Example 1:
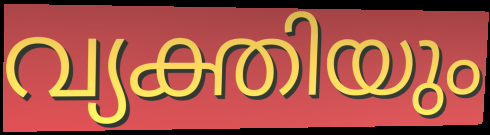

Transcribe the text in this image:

വ്യക്തിയും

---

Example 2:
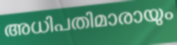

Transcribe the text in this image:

അധിപതിമാരായും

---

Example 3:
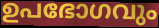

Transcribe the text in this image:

ഉപഭോഗവും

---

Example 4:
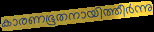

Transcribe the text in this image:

കാരണഭൂതനായിത്തീർന്നു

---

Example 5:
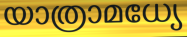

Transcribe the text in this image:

യാത്രാമധ്യേ